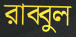
রাব্বুল